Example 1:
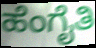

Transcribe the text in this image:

ಹೆಂಗೈತಿ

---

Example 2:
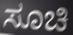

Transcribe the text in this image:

ಸೂಚಿ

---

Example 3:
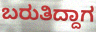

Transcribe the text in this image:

ಬರುತಿದ್ದಾಗ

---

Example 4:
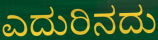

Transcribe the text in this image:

ಎದುರಿನದು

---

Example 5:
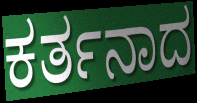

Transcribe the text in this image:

ಕರ್ತನಾದ